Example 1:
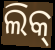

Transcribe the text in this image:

ଲିକ୍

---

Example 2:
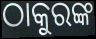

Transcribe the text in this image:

ଠାକୁରଙ୍କ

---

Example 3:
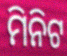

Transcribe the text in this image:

ମିନିଟ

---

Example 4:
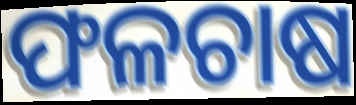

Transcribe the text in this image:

ଫଳଚାଷ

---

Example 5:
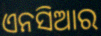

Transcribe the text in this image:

ଏନସିଆର